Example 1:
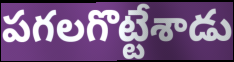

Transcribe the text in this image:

పగలగొట్టేశాడు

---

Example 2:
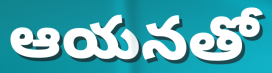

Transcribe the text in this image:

ఆయనతో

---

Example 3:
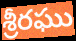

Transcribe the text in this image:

శ్రీరఘు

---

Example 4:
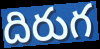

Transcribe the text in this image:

దిరుగ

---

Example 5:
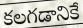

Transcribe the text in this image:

కలగడానికే